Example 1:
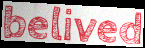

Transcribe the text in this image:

belived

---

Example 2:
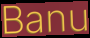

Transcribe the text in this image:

Banu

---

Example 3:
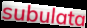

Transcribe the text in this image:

subulata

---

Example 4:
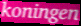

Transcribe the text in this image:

koningen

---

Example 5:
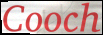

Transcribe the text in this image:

Cooch